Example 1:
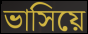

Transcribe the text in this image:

ভাসিয়ে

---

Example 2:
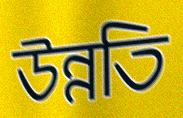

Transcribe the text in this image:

উন্নতি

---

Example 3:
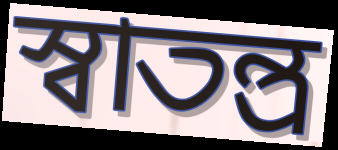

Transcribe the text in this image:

স্বাতন্ত্র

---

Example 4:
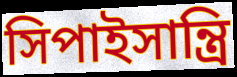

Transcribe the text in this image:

সিপাইসান্ত্রি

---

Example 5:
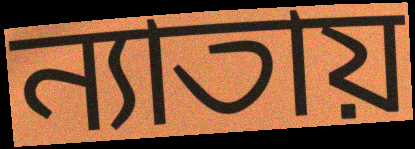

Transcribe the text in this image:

ন্যাতায়